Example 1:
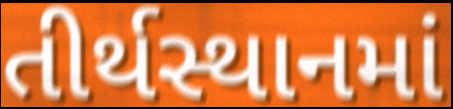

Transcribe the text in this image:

તીર્થસ્થાનમાં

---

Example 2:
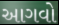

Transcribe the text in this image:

આગવો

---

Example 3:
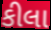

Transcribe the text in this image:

કીલા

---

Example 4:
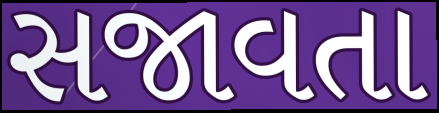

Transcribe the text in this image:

સજાવતા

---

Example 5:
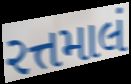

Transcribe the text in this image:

રત્તમાલં